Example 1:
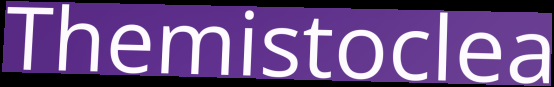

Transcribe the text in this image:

Themistoclea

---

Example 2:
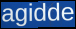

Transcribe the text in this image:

agidde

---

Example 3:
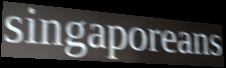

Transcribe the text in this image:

singaporeans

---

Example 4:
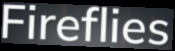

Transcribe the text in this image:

Fireflies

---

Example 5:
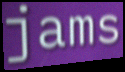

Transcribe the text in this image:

jams